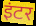
इंटर